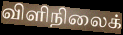
விளிநிலைக்